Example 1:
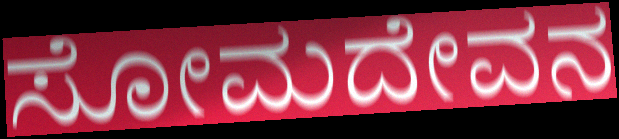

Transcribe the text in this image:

ಸೋಮದೇವನ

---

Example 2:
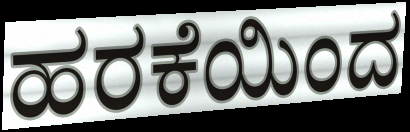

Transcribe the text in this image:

ಹರಕೆಯಿಂದ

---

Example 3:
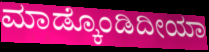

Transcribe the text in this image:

ಮಾಡ್ಕೊಂಡಿದೀಯಾ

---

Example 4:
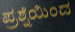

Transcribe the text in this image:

ಪ್ರಶ್ನೆಯಿಂದ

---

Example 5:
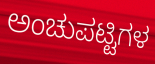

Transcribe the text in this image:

ಅಂಚುಪಟ್ಟಿಗಳ